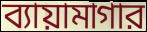
ব্যায়ামাগার